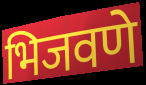
भिजवणे